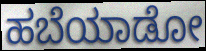
ಹಬೆಯಾಡೋ